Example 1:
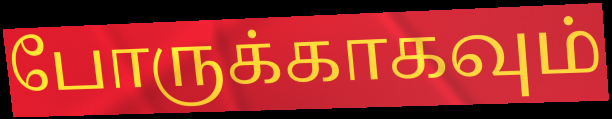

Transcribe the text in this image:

போருக்காகவும்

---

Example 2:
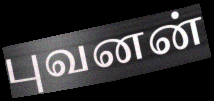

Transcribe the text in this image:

புவனன்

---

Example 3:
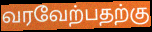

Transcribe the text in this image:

வரவேற்பதற்கு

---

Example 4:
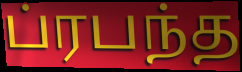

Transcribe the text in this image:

ப்ரபந்த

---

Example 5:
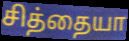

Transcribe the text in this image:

சித்தையா